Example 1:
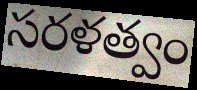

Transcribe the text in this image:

సరళత్వం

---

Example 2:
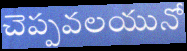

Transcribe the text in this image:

చెప్పవలయునో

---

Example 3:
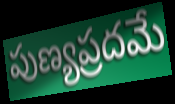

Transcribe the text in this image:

పుణ్యప్రదమే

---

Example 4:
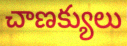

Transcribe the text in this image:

చాణక్యులు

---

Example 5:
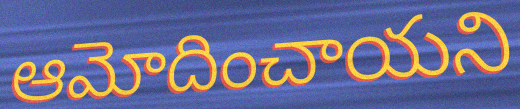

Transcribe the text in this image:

ఆమోదించాయని